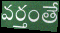
వర్తంతే